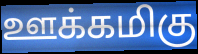
ஊக்கமிகு